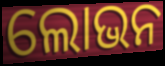
ଲୋଭନ